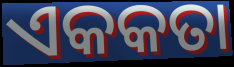
ଏକକତା